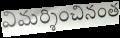
విమర్శించినంత